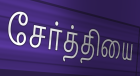
சேர்த்தியை